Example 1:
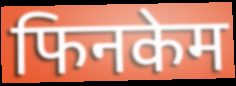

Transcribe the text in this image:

फिनकेम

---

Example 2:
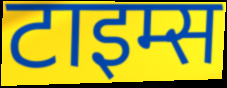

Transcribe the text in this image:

टाइम्स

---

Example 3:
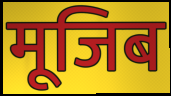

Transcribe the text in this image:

मूजिब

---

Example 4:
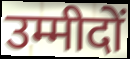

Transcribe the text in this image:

उम्मीदों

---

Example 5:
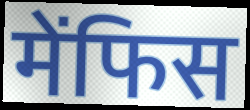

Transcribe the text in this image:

मेंफिस